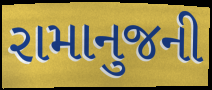
રામાનુજની